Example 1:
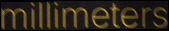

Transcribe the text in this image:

millimeters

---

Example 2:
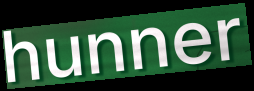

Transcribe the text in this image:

hunner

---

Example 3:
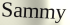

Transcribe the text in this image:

Sammy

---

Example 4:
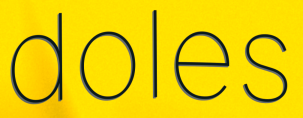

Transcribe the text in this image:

doles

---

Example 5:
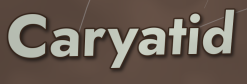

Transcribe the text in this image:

Caryatid